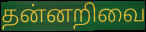
தன்னறிவை